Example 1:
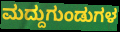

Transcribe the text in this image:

ಮದ್ದುಗುಂಡುಗಳ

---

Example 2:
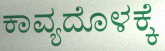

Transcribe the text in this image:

ಕಾವ್ಯದೊಳಕ್ಕೆ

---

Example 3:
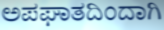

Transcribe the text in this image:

ಅಪಘಾತದಿಂದಾಗಿ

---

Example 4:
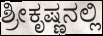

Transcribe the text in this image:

ಶ್ರೀಕೃಷ್ಣನಲ್ಲಿ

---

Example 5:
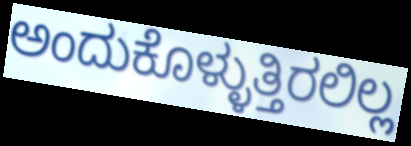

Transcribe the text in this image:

ಅಂದುಕೊಳ್ಳುತ್ತಿರಲಿಲ್ಲ